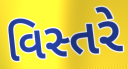
વિસ્તરે